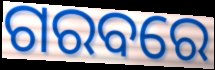
ଗରବରେ